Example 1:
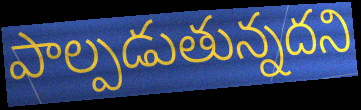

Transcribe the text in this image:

పాల్పడుతున్నదని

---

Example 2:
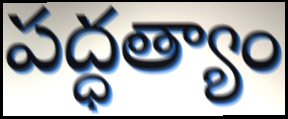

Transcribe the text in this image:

పద్ధత్యాం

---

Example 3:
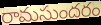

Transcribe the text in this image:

రామసుందరం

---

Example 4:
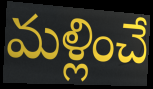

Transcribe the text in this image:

మళ్లించే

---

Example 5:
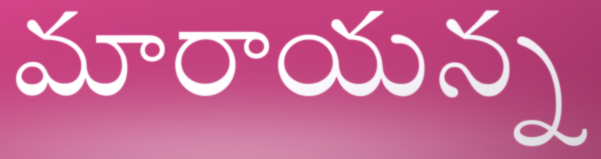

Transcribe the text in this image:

మారాయన్న